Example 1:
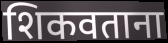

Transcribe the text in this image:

शिकवताना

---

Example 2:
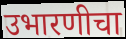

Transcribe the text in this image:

उभारणीचा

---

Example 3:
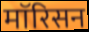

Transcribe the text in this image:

मॉरिसन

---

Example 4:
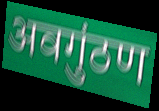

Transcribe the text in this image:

अवगुंठण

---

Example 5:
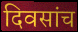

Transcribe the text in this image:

दिवसांच